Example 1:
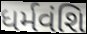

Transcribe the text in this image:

ધર્મવંશિ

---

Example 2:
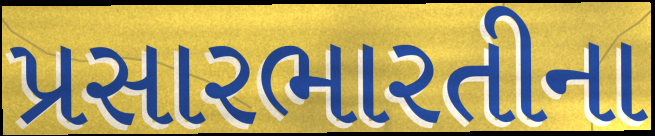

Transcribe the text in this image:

પ્રસારભારતીના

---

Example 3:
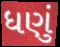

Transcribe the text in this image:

ધણું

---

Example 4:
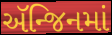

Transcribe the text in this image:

ઍન્જિનમાં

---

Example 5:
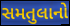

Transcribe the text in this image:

સમતુલાનો